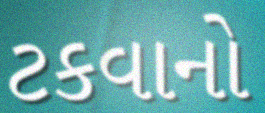
ટકવાનો